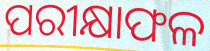
ପରୀକ୍ଷାଫଳ